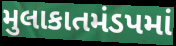
મુલાકાતમંડપમાં